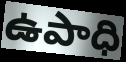
ఉపాధి